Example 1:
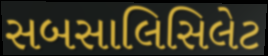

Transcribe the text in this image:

સબસાલિસિલેટ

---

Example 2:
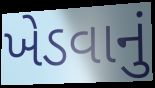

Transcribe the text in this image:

ખેડવાનું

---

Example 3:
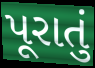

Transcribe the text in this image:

પૂરાતું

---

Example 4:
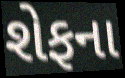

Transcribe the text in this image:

શેફના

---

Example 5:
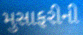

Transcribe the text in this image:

મુસાફરીની